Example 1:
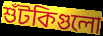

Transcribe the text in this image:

শুঁটকিগুলো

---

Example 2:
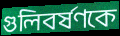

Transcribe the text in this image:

গুলিবর্ষণকে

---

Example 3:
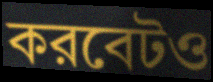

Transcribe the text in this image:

করবেটও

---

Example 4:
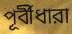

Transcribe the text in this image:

পূর্বীধারা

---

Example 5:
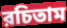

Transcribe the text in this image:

রচিতাম